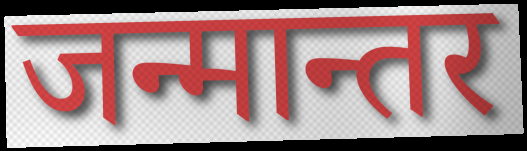
जन्मान्तर